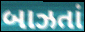
બાઝતાં